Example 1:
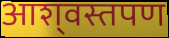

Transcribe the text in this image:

आश्वस्तपण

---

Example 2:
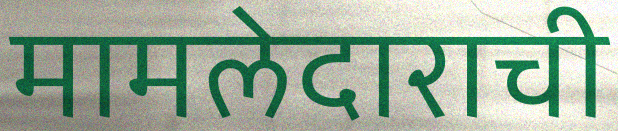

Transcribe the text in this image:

मामलेदाराची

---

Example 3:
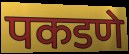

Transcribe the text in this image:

पकडणे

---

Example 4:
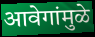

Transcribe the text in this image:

आवेगांमुळे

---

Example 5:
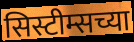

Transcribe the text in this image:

सिस्टीम्सच्या